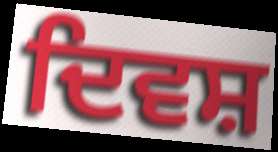
ਦਿਵਸ਼